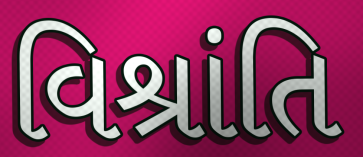
વિશ્રાંતિ